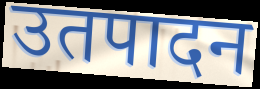
उतपादन